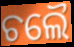
ଚଲୈ